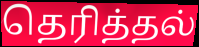
தெரித்தல்